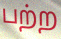
பற்ற